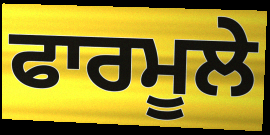
ਫਾਰਮੂਲੇ